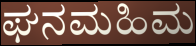
ಘನಮಹಿಮ